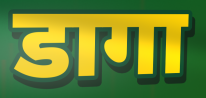
डागा